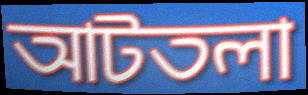
আটতলা